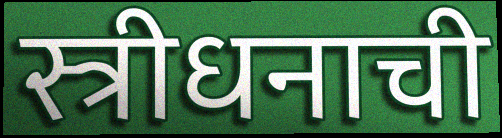
स्त्रीधनाची